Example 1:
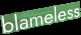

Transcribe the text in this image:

blameless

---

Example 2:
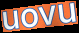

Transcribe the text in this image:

uovu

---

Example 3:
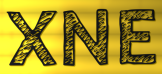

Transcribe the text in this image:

XNE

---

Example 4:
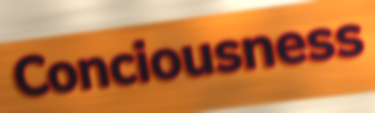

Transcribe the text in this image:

Conciousness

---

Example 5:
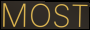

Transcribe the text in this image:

MOST